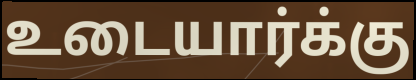
உடையார்க்கு